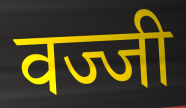
वज्जी